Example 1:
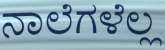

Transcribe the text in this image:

ನಾಲೆಗಳೆಲ್ಲ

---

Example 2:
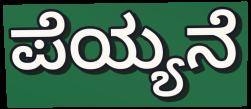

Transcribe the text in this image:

ಪೆಯ್ಯನೆ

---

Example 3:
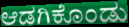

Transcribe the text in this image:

ಆಡಗಿಕೊಂಡು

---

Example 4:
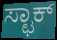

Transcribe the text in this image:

ಸ್ಟಾಕ್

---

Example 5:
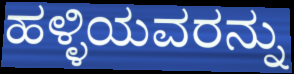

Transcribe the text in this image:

ಹಳ್ಳಿಯವರನ್ನು